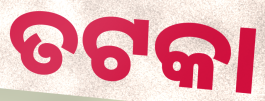
ତଟକା